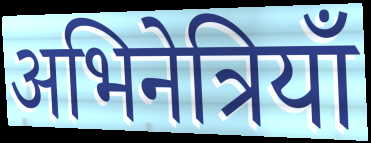
अभिनेत्रियाँ